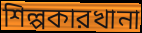
শিল্পকারখানা